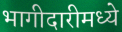
भागीदारीमध्ये